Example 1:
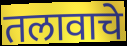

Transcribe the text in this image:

तलावाचे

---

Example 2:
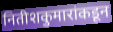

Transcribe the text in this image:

नितीशकुमारांकडून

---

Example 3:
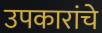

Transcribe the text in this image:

उपकारांचे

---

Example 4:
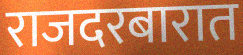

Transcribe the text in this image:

राजदरबारात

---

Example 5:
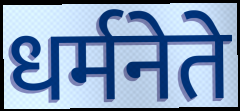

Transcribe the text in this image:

धर्मनेते